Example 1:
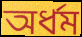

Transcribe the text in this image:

অর্ধম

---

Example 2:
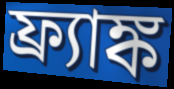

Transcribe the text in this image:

ফ্র্যাঙ্ক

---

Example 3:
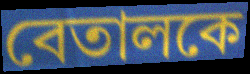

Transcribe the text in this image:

বেতালকে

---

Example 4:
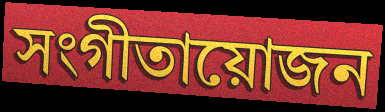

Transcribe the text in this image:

সংগীতায়োজন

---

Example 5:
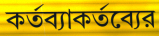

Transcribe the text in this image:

কর্তব্যাকর্তব্যের